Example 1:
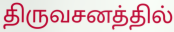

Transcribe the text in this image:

திருவசனத்தில்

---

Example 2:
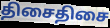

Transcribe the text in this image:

திசைதிசை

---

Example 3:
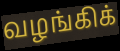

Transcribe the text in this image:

வழங்கிக்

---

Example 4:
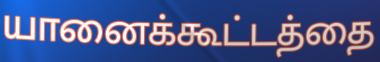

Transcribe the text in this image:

யானைக்கூட்டத்தை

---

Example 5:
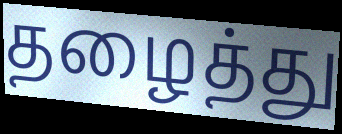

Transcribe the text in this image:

தழைத்து